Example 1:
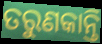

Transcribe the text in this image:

ତରୁଣକାନ୍ତି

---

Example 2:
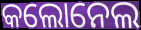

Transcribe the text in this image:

କଲୋନେଲ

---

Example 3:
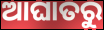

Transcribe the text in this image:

ଆଘାତରୁ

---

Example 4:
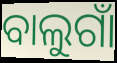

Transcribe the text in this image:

ବାଲୁଗାଁ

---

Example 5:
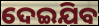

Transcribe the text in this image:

ଦେଇଯିବ